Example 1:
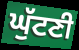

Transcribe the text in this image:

ਘੁੱਟਣੀ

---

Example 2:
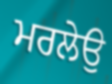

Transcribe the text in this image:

ਮਰਲੇਉ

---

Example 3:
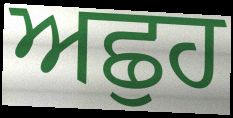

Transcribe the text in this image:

ਅਛੁਹ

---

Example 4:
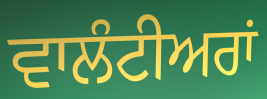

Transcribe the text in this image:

ਵਾਲੰਟੀਅਰਾਂ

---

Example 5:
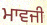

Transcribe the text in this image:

ਮਾਵਜੀ